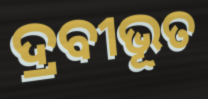
ଦ୍ରବୀଭୂତ